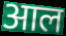
आल